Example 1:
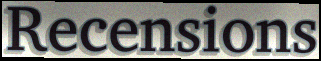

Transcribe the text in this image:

Recensions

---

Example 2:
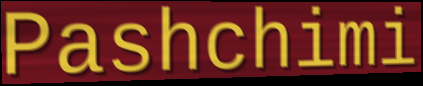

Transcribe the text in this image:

Pashchimi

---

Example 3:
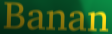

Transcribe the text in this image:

Banan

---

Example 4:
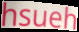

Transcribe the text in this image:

hsueh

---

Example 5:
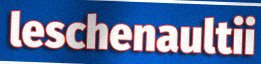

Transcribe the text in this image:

leschenaultii